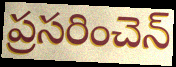
ప్రసరించెన్